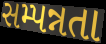
સમ્પન્નતા